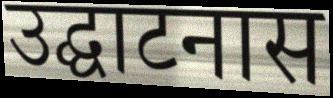
उद्घाटनास